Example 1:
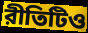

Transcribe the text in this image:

রীতিটিও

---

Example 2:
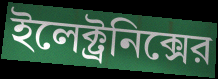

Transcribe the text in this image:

ইলেক্ট্রনিক্সের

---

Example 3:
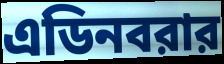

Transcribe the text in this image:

এডিনবরার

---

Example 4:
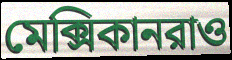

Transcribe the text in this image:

মেক্সিকানরাও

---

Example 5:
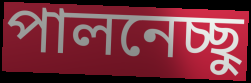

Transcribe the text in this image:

পালনেচ্ছু